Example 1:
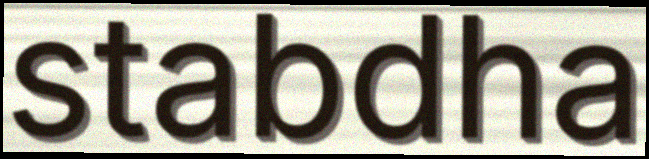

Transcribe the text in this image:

stabdha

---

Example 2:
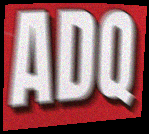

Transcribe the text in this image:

ADQ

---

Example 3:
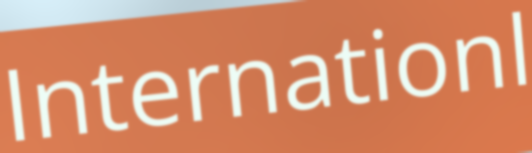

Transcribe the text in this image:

Internationl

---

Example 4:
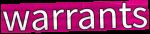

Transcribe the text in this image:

warrants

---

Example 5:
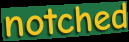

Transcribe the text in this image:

notched